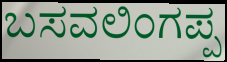
ಬಸವಲಿಂಗಪ್ಪ